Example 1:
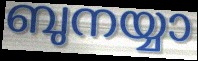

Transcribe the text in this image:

ബുനയ്യാ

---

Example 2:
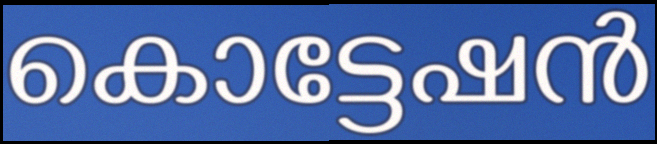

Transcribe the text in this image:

കൊട്ടേഷൻ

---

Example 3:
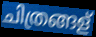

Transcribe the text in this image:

ചിത്രങ്ങള്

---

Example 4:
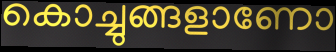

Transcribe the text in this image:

കൊച്ചുങ്ങളാണോ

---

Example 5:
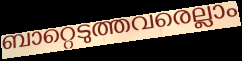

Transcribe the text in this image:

ബാറ്റെടുത്തവരെല്ലാം